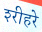
श्रीहरे